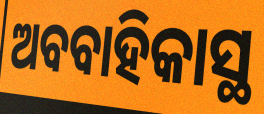
ଅବବାହିକାସ୍ଥ